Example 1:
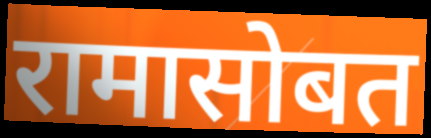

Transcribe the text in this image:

रामासोबत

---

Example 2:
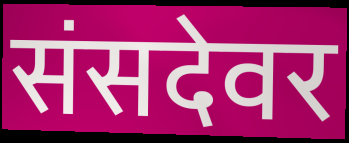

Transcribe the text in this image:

संसदेवर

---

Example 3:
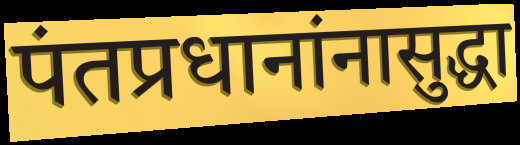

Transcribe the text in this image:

पंतप्रधानांनासुद्धा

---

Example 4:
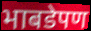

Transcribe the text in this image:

भाबडेपण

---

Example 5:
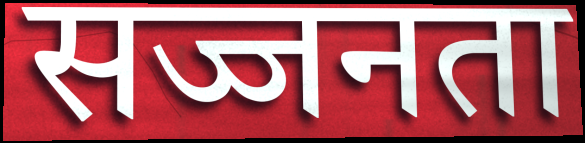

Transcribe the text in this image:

सज्जनता